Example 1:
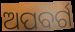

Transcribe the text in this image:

ଅପବର୍ଗ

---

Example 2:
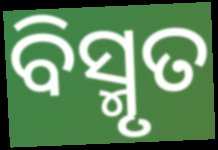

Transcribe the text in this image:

ବିସ୍ମୃତ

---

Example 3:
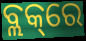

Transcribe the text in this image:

ବ୍ଲକ୍‌ରେ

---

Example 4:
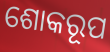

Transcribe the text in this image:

ଶୋକରୂପ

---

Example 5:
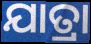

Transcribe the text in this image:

ଯାତ୍ରା